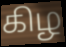
கிழ